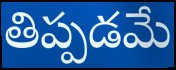
తిప్పడమే